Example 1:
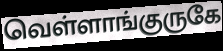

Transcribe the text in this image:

வெள்ளாங்குருகே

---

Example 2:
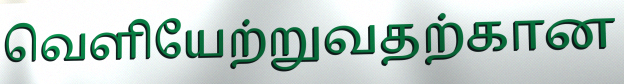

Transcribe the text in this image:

வெளியேற்றுவதற்கான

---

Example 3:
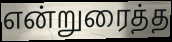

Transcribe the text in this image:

என்றுரைத்த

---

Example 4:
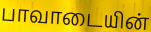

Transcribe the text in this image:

பாவாடையின்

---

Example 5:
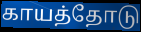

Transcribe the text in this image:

காயத்தோடு